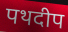
पथदीप